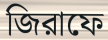
জিরাফে